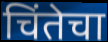
चिंतेचा